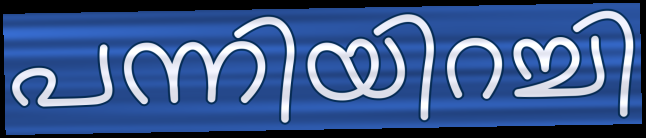
പന്നിയിറച്ചി